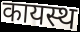
कायस्थ